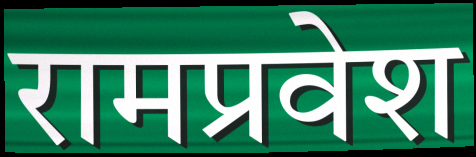
रामप्रवेश